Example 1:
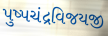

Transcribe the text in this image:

પુષ્પચંદ્રવિજયજી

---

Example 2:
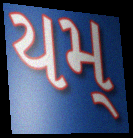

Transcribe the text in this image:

યમ્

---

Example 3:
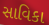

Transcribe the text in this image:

સાવિકા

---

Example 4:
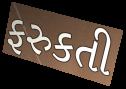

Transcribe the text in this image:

ફરુકતી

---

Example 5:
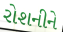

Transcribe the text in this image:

રોશનીને